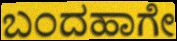
ಬಂದಹಾಗೇ